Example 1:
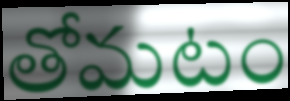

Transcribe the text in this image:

తోమటం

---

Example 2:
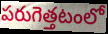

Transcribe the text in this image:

పరుగెత్తటంలో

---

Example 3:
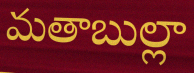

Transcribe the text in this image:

మతాబుల్లా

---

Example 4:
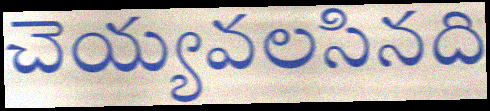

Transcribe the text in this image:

చెయ్యవలసినది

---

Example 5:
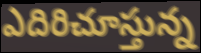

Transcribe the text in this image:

ఎదిరిచూస్తున్న